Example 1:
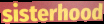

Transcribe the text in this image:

sisterhood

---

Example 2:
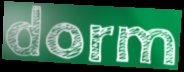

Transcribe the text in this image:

dorm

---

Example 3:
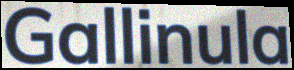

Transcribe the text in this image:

Gallinula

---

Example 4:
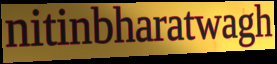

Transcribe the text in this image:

nitinbharatwagh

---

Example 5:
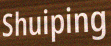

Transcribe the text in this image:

Shuiping